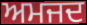
ਅਮਜਦ